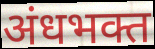
अंधभक्त